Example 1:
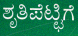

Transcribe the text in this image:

ಶೃತಿಪೆಟ್ಟಿಗೆ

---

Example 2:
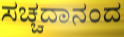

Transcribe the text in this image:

ಸಚ್ಚದಾನಂದ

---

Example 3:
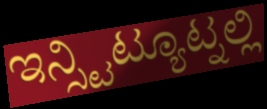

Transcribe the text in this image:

ಇನ್ಸ್ಟಿಟ್ಯೂಟ್ನಲ್ಲಿ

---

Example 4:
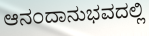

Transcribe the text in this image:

ಆನಂದಾನುಭವದಲ್ಲಿ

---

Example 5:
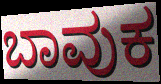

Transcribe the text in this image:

ಬಾವುಕ